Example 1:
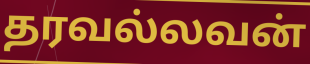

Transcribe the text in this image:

தரவல்லவன்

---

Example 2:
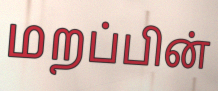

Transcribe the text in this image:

மறப்பின்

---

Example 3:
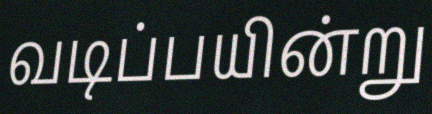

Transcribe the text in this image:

வடிப்பயின்று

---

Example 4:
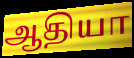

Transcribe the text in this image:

ஆதியா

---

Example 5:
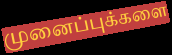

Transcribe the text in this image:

முனைப்புக்களை